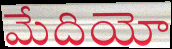
మేదియో